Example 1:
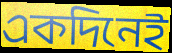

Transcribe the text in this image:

একদিনেই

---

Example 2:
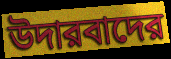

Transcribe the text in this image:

উদারবাদের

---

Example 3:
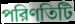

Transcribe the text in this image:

পরিণতিটি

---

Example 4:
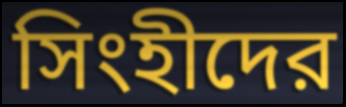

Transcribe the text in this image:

সিংহীদের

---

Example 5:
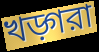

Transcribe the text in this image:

খড়্গরা